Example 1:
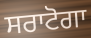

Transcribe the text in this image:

ਸਰਾਟੋਗਾ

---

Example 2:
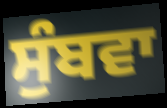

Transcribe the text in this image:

ਸੁੰਬਵਾ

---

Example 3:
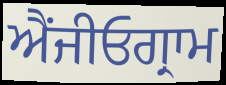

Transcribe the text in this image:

ਐਂਜੀਓਗ੍ਰਾਮ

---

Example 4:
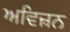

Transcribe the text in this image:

ਅਵਿਜ਼ਨ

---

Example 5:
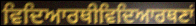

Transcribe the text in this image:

ਵਿਦਿਆਰਥੀਵਿਦਿਆਰਥਣਾਂ